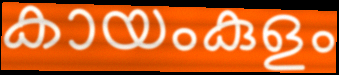
കായംകുളം